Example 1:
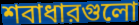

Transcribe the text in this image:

শবাধারগুলো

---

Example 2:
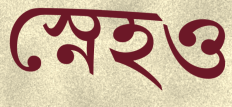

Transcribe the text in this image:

স্নেহও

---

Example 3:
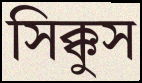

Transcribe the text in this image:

সিক্কুস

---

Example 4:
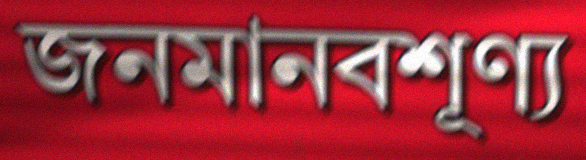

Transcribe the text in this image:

জনমানবশূণ্য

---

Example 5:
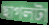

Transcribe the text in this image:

ছাগলটা